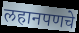
लहानपणचे